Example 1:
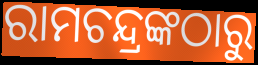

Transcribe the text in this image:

ରାମଚନ୍ଦ୍ରଙ୍କଠାରୁ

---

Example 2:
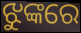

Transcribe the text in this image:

ଝୁଙ୍କରେ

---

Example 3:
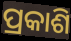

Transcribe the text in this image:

ପ୍ରକାଶି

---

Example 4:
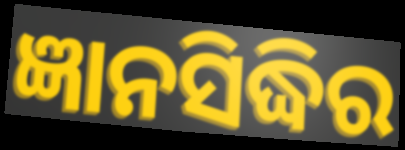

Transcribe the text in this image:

ଜ୍ଞାନସିଦ୍ଧିର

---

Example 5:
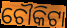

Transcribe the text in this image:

ଚୌକିଟା